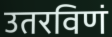
उतरविणं